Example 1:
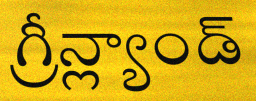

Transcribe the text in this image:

గ్రీన్ల్యాండ్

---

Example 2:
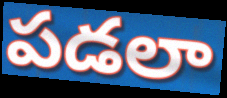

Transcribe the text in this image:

పడలా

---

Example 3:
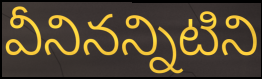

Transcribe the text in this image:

వీనినన్నిటిని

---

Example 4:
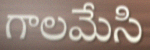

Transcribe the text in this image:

గాలమేసి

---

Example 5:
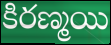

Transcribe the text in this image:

కిరణ్మయి